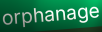
orphanage